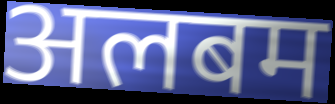
अलबम